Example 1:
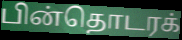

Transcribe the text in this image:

பின்தொடரக்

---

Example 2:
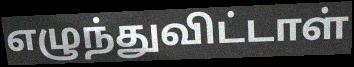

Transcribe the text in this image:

எழுந்துவிட்டாள்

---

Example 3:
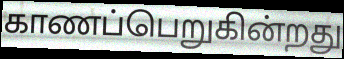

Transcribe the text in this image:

காணப்பெறுகின்றது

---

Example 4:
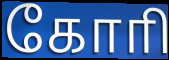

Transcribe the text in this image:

கோரி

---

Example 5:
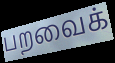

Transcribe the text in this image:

பறவைக்